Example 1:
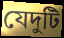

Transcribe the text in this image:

যেদুটি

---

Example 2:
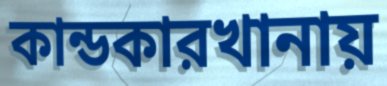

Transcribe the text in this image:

কান্ডকারখানায়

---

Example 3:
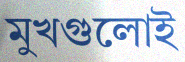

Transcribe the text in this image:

মুখগুলোই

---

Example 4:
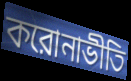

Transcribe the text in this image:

করোনাভীতি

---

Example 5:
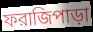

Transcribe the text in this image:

ফরাজিপাড়া